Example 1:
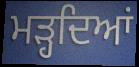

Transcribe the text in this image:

ਮੜ੍ਹਦਿਆਂ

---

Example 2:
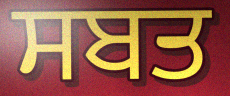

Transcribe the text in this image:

ਸਬਤ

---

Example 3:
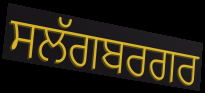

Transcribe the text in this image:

ਸਲੱਗਬਰਗਰ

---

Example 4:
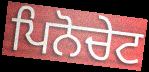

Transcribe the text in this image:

ਪਿਨੋਚੇਟ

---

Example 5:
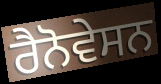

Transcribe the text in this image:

ਰੈਨੋਵੇਸਨ